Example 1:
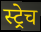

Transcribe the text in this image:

स्ट्रेच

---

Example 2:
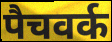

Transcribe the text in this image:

पैचवर्क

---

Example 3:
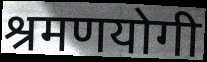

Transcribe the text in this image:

श्रमणयोगी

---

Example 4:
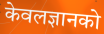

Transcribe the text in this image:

केवलज्ञानको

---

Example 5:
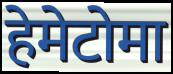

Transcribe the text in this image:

हेमेटोमा